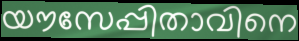
യൗസേപ്പിതാവിനെ